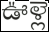
ఊళ్లె